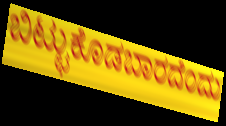
ಬಿಟ್ಟುಕೊಡಬಾರದೆಂದು